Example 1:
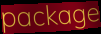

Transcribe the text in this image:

package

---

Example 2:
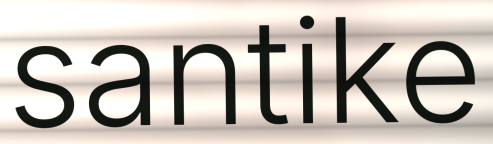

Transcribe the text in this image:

santike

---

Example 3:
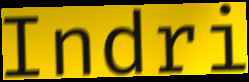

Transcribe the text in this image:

Indri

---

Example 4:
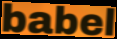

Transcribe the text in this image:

babel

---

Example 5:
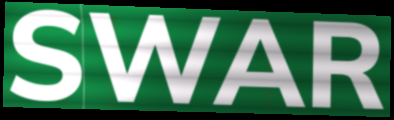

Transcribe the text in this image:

SWAR